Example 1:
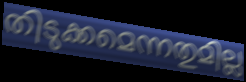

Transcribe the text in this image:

തിടുക്കമെന്നതുമില്ല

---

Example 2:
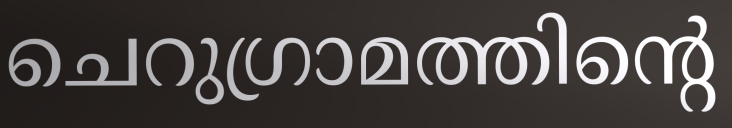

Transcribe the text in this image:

ചെറുഗ്രാമത്തിന്റെ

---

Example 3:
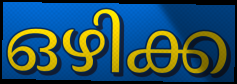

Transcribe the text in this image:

ഒഴിക്ക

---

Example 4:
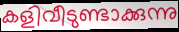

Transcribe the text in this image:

കളിവീടുണ്ടാക്കുന്നു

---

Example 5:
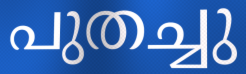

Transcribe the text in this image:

പുതച്ചു